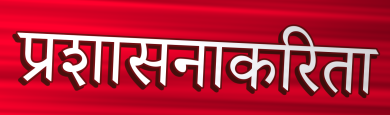
प्रशासनाकरिता